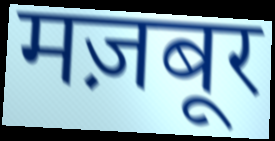
मज़बूर